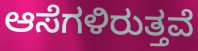
ಆಸೆಗಳಿರುತ್ತವೆ